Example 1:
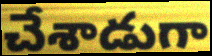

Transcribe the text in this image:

చేశాడుగా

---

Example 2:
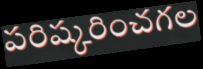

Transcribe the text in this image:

పరిష్కరించగల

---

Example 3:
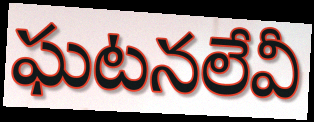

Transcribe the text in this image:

ఘటనలేవీ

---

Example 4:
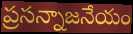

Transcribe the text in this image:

ప్రసన్నాజనేయం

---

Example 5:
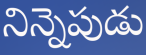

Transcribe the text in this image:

నిన్నెపుడు